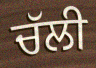
ਚੱਲੀ